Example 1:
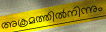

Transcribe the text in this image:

അക്രമത്തിൽനിന്നും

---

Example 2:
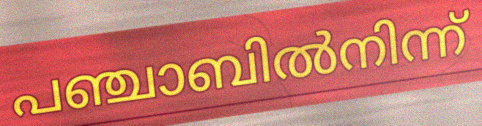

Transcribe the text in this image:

പഞ്ചാബിൽനിന്ന്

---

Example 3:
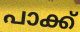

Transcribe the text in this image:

പാക്ക്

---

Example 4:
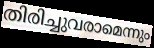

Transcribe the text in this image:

തിരിച്ചുവരാമെന്നും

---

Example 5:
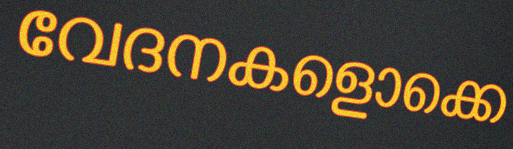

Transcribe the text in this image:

വേദനകളൊക്കെ